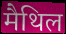
मैथिल